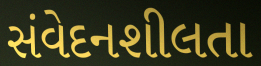
સંવેદનશીલતા